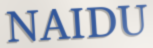
NAIDU